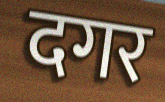
दगर